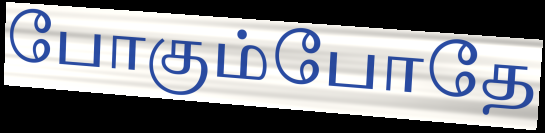
போகும்போதே